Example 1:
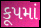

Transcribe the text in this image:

કૂપમાં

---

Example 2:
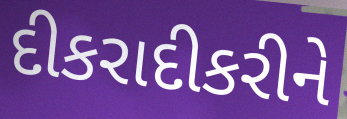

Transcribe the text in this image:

દીકરાદીકરીને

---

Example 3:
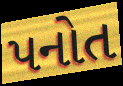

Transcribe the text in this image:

પનોત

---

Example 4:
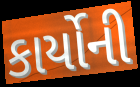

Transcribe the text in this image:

કાર્યોની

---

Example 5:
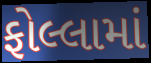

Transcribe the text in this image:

ફોલ્લામાં